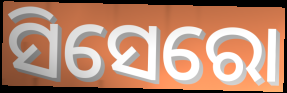
ସିସେରୋ